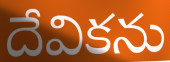
దేవికను